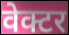
वेक्टर